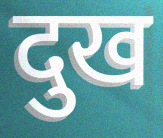
दुख